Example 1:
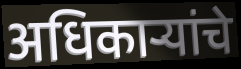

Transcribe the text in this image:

अधिकाऱ्यांचे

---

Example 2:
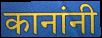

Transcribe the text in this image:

कानांनी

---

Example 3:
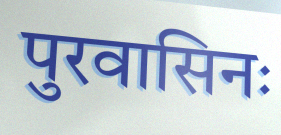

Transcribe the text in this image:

पुरवासिनः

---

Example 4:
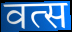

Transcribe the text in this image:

वत्स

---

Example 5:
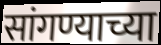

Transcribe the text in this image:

सांगण्याच्या